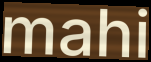
mahi